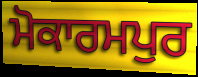
ਮੋਕਾਰਮਪੁਰ